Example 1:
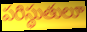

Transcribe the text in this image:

పరిస్థుతులూ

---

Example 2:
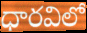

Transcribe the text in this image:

ధారవిలో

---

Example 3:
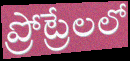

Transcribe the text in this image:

ప్రోట్రేలలో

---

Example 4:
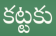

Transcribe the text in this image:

కట్టకు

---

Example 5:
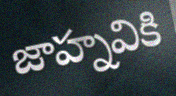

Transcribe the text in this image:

జాహ్నవికి